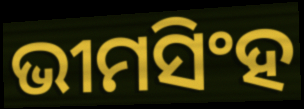
ଭୀମସିଂହ